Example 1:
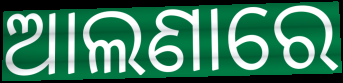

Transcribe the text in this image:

ଆଲଣାରେ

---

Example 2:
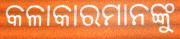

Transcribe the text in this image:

କଳାକାରମାନଙ୍କୁ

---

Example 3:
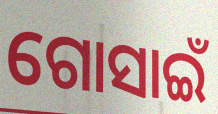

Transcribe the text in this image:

ଗୋସାଇଁ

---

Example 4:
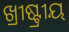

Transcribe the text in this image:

ଖ୍ରୀଷ୍ଟ୍ରୀୟ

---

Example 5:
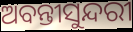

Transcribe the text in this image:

ଅବନ୍ତୀସୁନ୍ଦରୀ